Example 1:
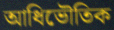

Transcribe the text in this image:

আধিভৌতিক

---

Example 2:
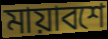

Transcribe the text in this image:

মায়াবশে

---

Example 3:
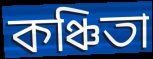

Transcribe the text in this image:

কঞ্চিতা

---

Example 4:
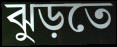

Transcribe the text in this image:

ঝুড়তে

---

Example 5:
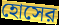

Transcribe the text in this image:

হোসের